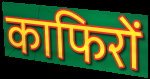
काफिरों